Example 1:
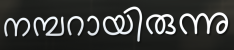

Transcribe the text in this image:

നമ്പറായിരുന്നു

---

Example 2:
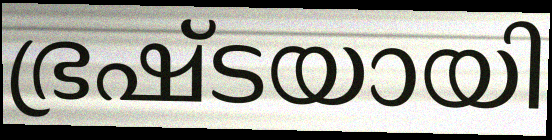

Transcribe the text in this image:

ഭ്രഷ്ടയായി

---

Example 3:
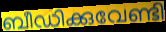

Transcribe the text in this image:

ബീഡിക്കുവേണ്ടി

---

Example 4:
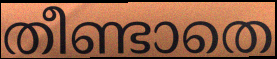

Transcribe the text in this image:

തീണ്ടാതെ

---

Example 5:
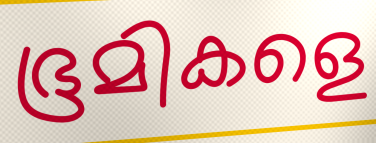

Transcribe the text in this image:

ഭൂമികളെ